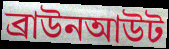
ব্রাউনআউট